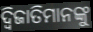
ଦ୍ୱିଜାତିମାନଙ୍କୁ